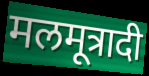
मलमूत्रादी